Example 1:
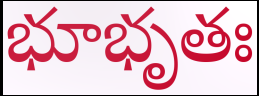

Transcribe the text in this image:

భూభృతః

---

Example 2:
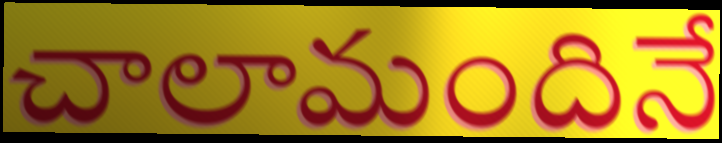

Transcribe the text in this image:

చాలామందినే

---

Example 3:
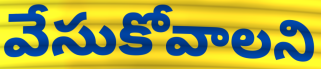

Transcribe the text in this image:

వేసుకోవాలని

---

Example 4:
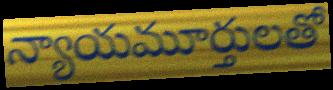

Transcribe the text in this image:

న్యాయమూర్తులతో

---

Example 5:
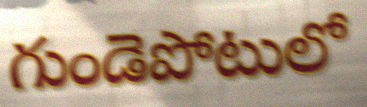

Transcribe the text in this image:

గుండెపోటులో